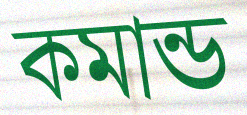
কমান্ড